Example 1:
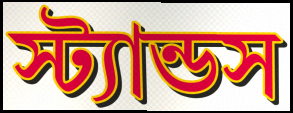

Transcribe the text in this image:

স্ট্যান্ডস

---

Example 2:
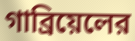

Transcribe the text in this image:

গাব্রিয়েলের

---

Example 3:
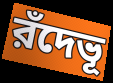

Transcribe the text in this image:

রঁদেভূ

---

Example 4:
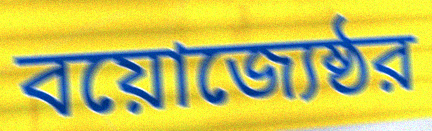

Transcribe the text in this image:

বয়োজ্যেষ্ঠর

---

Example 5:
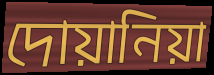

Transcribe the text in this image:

দোয়ানিয়া